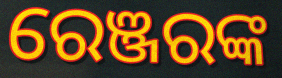
ରେଞ୍ଜରଙ୍କ